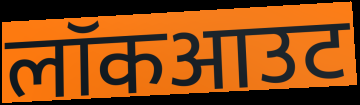
लॉकआउट